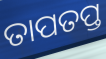
ତାପତପ୍ତ